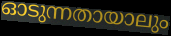
ഓടുന്നതായാലും